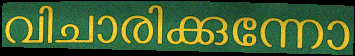
വിചാരിക്കുന്നോ